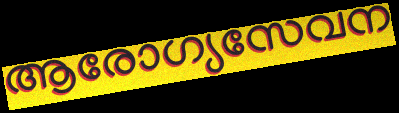
ആരോഗ്യസേവന